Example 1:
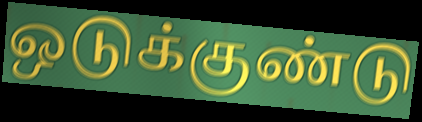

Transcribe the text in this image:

ஒடுக்குண்டு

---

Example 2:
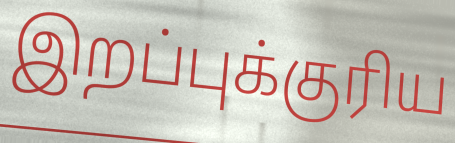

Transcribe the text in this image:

இறப்புக்குரிய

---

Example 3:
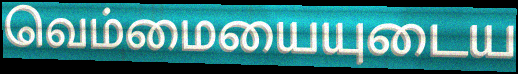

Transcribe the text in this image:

வெம்மையையுடைய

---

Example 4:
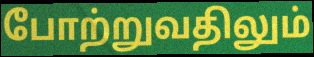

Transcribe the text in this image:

போற்றுவதிலும்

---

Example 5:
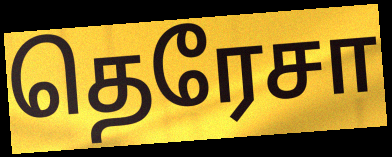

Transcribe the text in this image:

தெரேசா